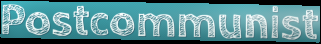
Postcommunist